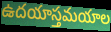
ఉదయాస్తమయాల